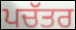
ਪਚੱਤਰ